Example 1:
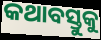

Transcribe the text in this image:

କଥାବସ୍ତୁକୁ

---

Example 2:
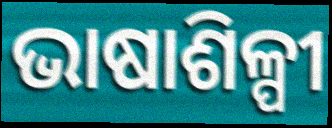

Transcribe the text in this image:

ଭାଷାଶିଳ୍ପୀ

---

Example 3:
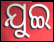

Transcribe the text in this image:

ଯୁଇ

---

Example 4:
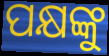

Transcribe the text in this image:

ପକ୍ଷଙ୍କୁ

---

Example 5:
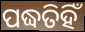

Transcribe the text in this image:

ପଦ୍ଧତିହିଁ